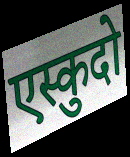
एस्कुदो